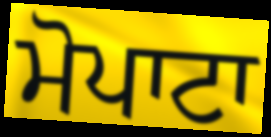
ਮੋਪਾਟਾ